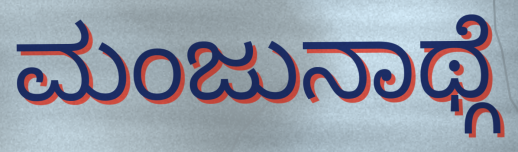
ಮಂಜುನಾಥ್ಗೆ